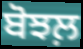
ਬੋਝਲ਼